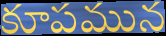
కూపమున